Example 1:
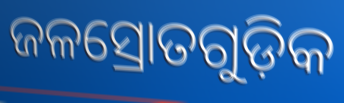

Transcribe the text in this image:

ଜଳସ୍ରୋତଗୁଡ଼ିକ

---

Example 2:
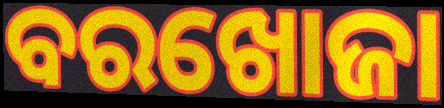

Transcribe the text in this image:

ବରଖୋଜା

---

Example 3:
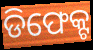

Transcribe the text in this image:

ଡିଫେକ୍ଟ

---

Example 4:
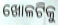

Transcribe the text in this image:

ଖୋଳଟିକୁ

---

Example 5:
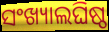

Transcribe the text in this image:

ସଂଖ୍ୟାଲଘିଷ୍ଠ